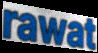
rawat